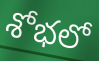
శోభలో